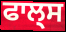
ਫਾਲ੍ਸ